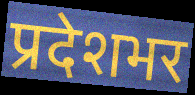
प्रदेशभर